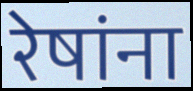
रेषांना